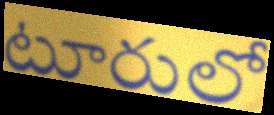
టూరులో